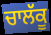
ਚਾਲੱਕੂ